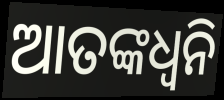
ଆତଙ୍କଧ୍ଵନି